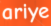
ariye